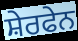
ਸ਼ੇਰਫੇਨ